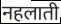
नहलाती